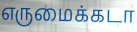
எருமைக்கடா